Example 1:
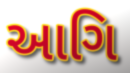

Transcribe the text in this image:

આગિ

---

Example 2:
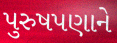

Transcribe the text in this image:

પુરુષપણાને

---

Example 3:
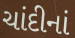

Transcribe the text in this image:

ચાંદીનાં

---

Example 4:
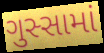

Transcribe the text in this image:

ગુસ્સામાં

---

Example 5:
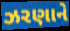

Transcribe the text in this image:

ઝરણાને